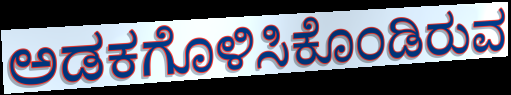
ಅಡಕಗೊಳಿಸಿಕೊಂಡಿರುವ